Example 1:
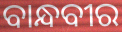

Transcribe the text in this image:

ବାନ୍ଧବୀର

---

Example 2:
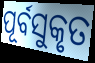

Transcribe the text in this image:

ପୂର୍ବସୁକୃତ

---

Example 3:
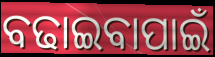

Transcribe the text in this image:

ବଢାଇବାପାଇଁ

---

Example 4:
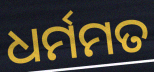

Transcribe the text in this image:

ଧର୍ମମତ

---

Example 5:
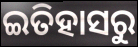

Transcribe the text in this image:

ଇତିହାସରୁ